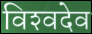
विश्वदेव